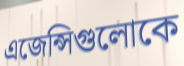
এজেন্সিগুলোকে